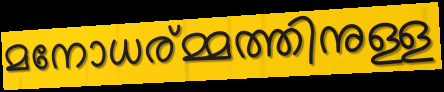
മനോധര്മ്മത്തിനുള്ള